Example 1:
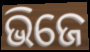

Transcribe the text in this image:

ଭିଜେ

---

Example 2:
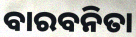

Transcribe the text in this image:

ବାରବନିତା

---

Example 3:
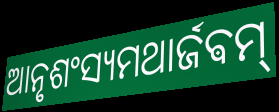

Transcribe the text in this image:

ଆନୃଶଂସ୍ୟମଥାର୍ଜଵମ୍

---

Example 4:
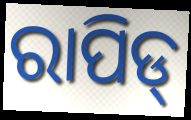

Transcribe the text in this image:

ରାପିଡ୍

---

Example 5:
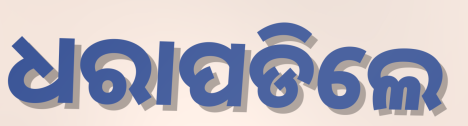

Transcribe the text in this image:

ଧରାପଡିଲେ